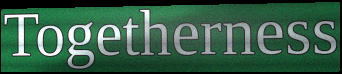
Togetherness